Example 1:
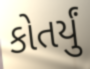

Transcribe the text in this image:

કોતર્યું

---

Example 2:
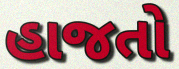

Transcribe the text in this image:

હાજતો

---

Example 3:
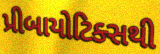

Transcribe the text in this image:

પ્રીબાયોટિક્સથી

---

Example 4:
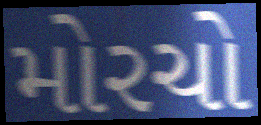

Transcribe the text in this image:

મોરચો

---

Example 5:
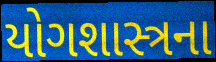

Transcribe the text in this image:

યોગશાસ્ત્રના